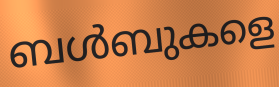
ബൾബുകളെ